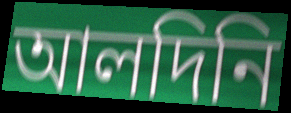
আলদিনি